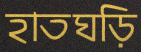
হাতঘড়ি